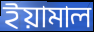
ইয়ামাল